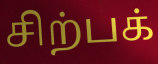
சிற்பக்